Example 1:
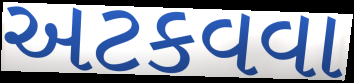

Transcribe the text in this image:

અટકવવા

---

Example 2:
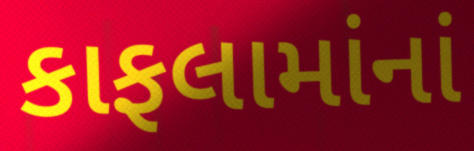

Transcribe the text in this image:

કાફલામાંનાં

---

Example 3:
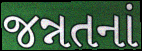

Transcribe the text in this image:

જન્નતનાં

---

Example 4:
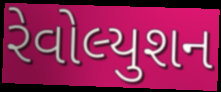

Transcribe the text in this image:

રેવોલ્યુશન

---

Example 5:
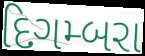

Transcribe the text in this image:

દિગમ્બરા